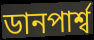
ডানপার্শ্ব